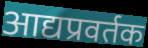
आद्यप्रवर्तक